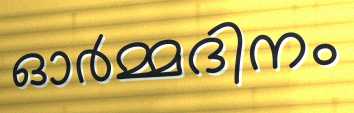
ഓർമ്മദിനം